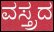
ವಸ್ತ್ರದ